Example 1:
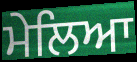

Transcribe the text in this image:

ਮੇਲਿਆ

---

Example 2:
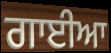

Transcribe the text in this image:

ਗਾਈਆ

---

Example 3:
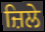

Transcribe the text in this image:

ਜ਼ਿਲੇ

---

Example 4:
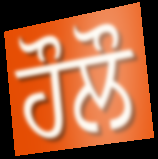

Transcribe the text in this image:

ਹੌਲੌ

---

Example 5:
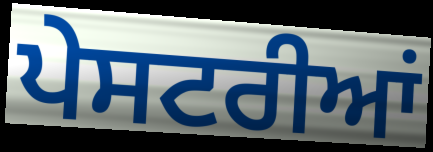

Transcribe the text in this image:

ਪੇਸਟਰੀਆਂ